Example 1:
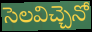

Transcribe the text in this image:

సెలవిచ్చెనో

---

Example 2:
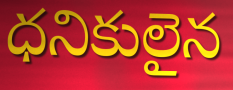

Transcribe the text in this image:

ధనికులైన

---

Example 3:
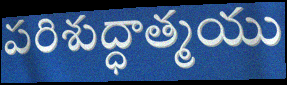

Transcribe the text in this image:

పరిశుద్ధాత్మయు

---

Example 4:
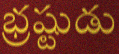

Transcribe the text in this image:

భ్రష్టుడు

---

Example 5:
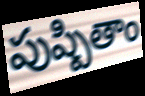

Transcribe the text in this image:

పుష్పితాం